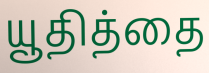
யூதித்தை